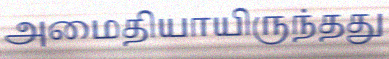
அமைதியாயிருந்தது